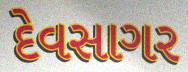
દેવસાગર